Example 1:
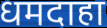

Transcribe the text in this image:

धमदाहा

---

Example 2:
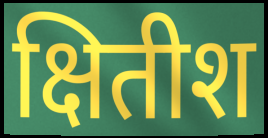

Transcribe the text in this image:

क्षितीश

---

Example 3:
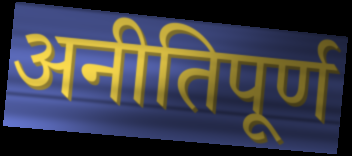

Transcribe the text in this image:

अनीतिपूर्ण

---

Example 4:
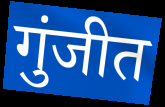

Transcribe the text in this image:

गुंजीत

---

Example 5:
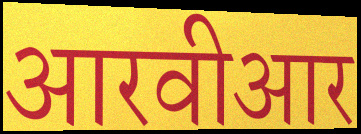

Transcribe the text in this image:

आरवीआर